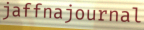
jaffnajournal